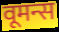
वूमन्स